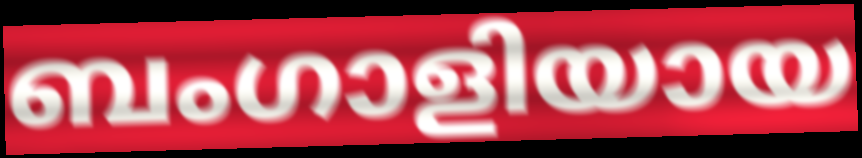
ബംഗാളിയായ